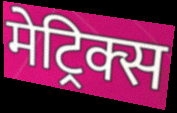
मेट्रिक्‍स